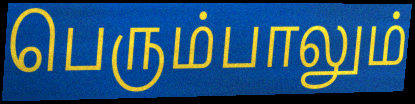
பெரும்பாலும்